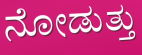
ನೋಡುತ್ತು